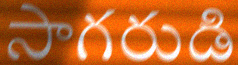
సాగరుడి